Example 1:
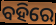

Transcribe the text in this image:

ବହିରେ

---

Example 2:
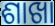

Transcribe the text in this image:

ଶାଖା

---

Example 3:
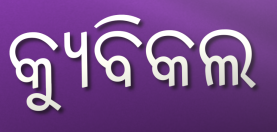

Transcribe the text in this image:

କ୍ୟୁବିକଲ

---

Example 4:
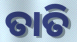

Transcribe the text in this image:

ତାତି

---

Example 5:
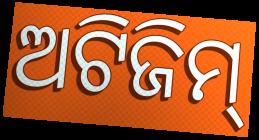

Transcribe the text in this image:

ଅଟିଜିମ୍